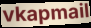
vkapmail